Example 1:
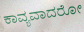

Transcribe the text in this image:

ಕಾವ್ಯವಾದರೋ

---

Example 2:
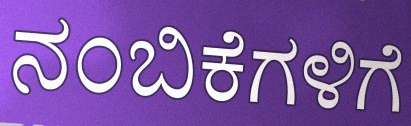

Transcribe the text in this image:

ನಂಬಿಕೆಗಳಿಗೆ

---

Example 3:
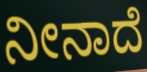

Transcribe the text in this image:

ನೀನಾದೆ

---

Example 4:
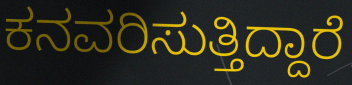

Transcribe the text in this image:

ಕನವರಿಸುತ್ತಿದ್ದಾರೆ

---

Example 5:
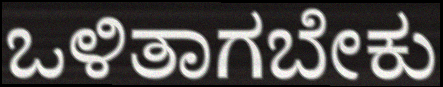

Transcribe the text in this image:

ಒಳಿತಾಗಬೇಕು